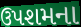
ઉપશમના